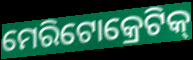
ମେରିଟୋକ୍ରେଟିକ୍